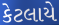
કેટલાયે